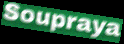
Soupraya